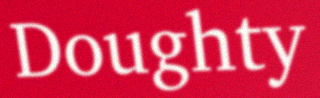
Doughty